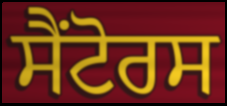
ਸੈਂਟੋਰਸ